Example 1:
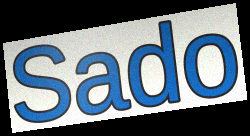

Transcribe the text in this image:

Sado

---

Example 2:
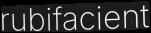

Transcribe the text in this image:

rubifacient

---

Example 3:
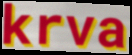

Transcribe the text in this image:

krva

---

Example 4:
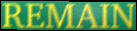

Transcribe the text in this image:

REMAIN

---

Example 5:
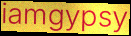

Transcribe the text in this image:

iamgypsy